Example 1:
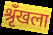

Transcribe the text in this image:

श्रृँखला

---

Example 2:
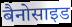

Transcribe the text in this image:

बैनोसाइड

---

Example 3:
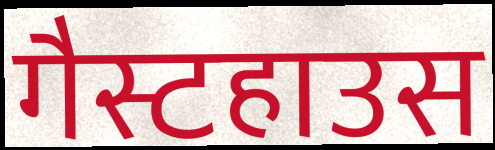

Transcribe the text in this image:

गैस्टहाउस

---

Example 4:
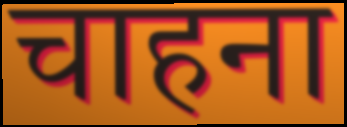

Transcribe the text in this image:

चाहना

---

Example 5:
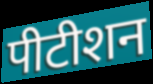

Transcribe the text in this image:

पीटीशन